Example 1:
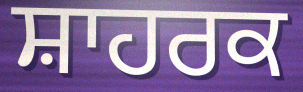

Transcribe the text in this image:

ਸ਼ਾਹਰਕ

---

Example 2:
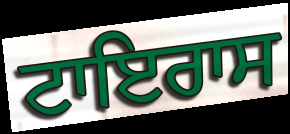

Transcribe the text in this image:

ਟਾਇਰਾਸ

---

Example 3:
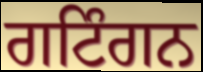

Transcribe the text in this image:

ਗਟਿੰਗਨ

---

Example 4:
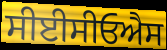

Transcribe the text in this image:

ਸੀਈਸੀਓਐਸ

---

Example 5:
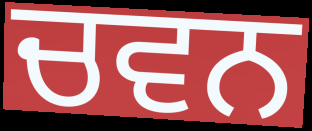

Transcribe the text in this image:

ਚਵਨ